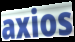
axios